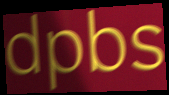
dpbs